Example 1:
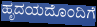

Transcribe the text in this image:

ಹೃದಯದೊಂದಿಗೆ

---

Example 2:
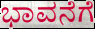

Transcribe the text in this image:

ಭಾವನೆಗೆ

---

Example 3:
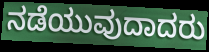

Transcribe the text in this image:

ನಡೆಯುವುದಾದರು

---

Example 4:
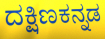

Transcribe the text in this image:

ದಕ್ಷಿಣಕನ್ನಡ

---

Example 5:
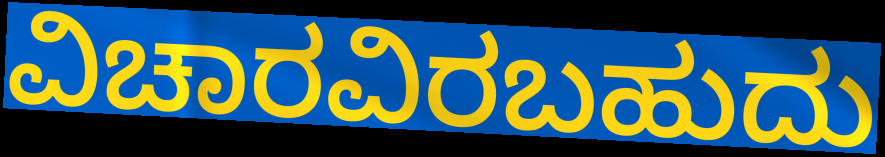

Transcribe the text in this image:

ವಿಚಾರವಿರಬಹುದು